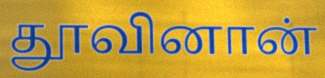
தூவினான்